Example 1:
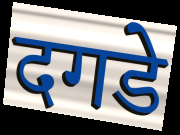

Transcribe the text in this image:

दगडे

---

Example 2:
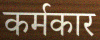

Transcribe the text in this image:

कर्मकार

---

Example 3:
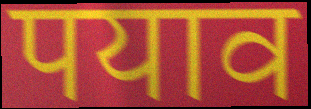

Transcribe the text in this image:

पयाव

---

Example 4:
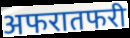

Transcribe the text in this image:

अफरातफरी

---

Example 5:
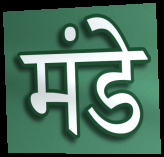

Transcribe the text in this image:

मंडे